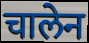
चालेन